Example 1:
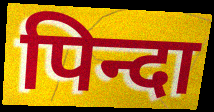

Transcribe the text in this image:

पिन्दा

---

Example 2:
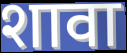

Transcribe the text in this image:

शावा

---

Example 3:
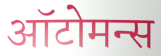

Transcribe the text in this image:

ऑटोमन्स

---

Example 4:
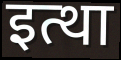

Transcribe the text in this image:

इत्था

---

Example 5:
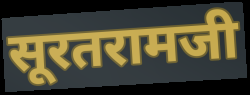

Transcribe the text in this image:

सूरतरामजी